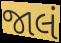
જાલં